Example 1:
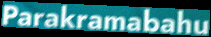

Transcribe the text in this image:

Parakramabahu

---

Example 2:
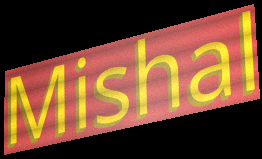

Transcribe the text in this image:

Mishal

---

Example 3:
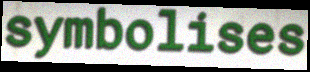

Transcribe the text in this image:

symbolises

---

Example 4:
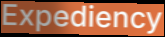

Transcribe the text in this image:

Expediency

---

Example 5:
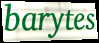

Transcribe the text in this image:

barytes